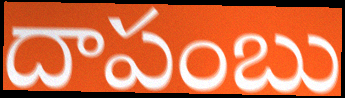
దాపంబు